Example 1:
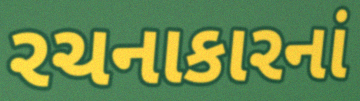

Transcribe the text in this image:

રચનાકારનાં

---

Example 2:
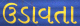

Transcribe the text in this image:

ઉડાવતા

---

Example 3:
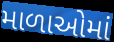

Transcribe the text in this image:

માળાઓમાં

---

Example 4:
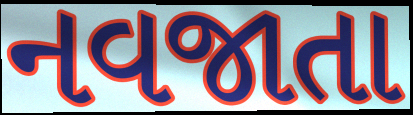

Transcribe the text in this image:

નવજાતા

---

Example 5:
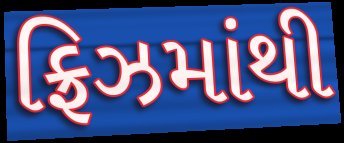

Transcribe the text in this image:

ફ્રિઝમાંથી